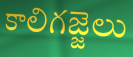
కాలిగజ్జెలు